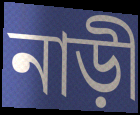
নাড়ী